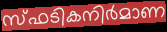
സ്ഫടികനിർമാണ